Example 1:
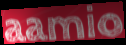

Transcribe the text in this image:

aamio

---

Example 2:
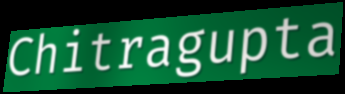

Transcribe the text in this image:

Chitragupta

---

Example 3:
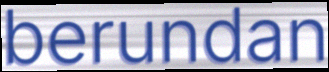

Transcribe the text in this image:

berundan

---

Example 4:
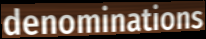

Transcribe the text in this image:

denominations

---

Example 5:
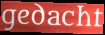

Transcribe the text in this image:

gedacht